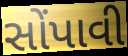
સોંપાવી